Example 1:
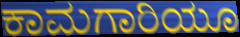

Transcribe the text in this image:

ಕಾಮಗಾರಿಯೂ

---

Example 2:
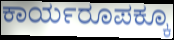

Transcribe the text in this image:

ಕಾರ್ಯರೂಪಕ್ಕೂ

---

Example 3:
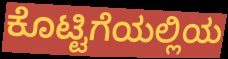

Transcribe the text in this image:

ಕೊಟ್ಟಿಗೆಯಲ್ಲಿಯ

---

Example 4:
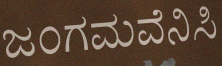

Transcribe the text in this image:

ಜಂಗಮವೆನಿಸಿ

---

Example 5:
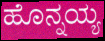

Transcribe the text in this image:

ಹೊನ್ನಯ್ಯ